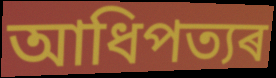
আধিপত্যৰ